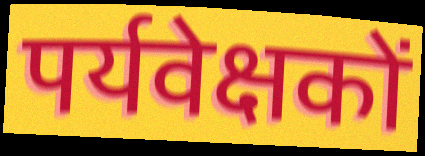
पर्यवेक्षकों